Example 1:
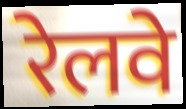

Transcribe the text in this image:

रेलवे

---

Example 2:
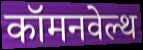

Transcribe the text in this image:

कॉमनवेल्थ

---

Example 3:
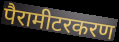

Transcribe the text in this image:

पैरामीटरकरण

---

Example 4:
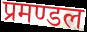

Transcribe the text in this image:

प्रमण्डल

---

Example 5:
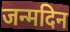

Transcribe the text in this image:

जन्मदिन